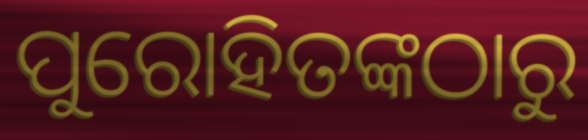
ପୁରୋହିତଙ୍କଠାରୁ